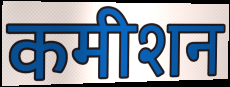
कमीशन